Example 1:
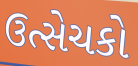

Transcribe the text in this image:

ઉત્સેચકો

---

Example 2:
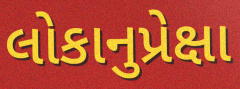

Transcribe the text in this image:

લોકાનુપ્રેક્ષા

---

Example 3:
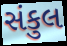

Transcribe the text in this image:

સંકુલ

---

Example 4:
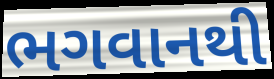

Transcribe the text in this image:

ભગવાનથી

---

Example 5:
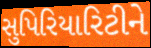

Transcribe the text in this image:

સુપિરિયારિટીને